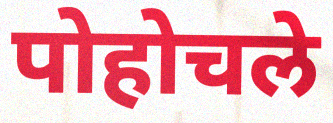
पोहोचले